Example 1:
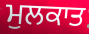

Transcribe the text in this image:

ਮੁਲਕਾਤ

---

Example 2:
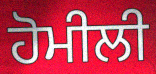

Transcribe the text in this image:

ਹੋਮੀਲੀ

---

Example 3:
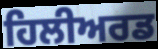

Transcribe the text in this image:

ਹਿਲੀਅਰਡ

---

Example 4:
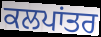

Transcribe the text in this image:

ਕਲਪਾਂਤਰ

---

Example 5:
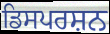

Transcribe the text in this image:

ਡਿਸਪਰਸ਼ਨ